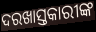
ଦରଖାସ୍ତକାରୀଙ୍କ